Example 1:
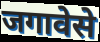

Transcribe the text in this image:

जगावेसे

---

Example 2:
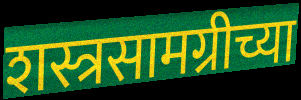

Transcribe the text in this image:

शस्त्रसामग्रीच्या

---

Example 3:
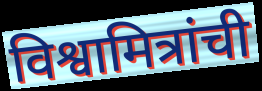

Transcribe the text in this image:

विश्वामित्रांची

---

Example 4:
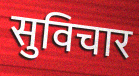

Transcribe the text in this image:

सुविचार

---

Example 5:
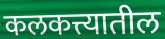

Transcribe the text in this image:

कलकत्त्यातील